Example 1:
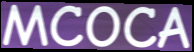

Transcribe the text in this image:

MCOCA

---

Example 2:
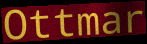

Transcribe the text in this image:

Ottmar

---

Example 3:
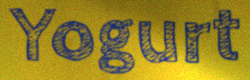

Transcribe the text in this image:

Yogurt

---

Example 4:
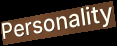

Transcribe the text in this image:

Personality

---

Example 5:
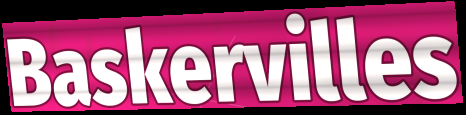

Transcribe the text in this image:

Baskervilles